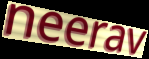
neerav